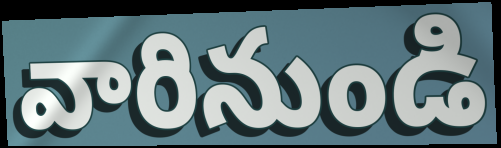
వారినుండి